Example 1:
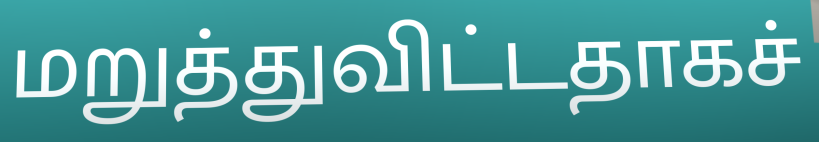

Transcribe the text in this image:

மறுத்துவிட்டதாகச்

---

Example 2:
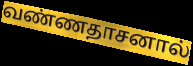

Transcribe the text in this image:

வண்ணதாசனால்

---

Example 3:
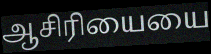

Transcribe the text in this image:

ஆசிரியையை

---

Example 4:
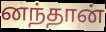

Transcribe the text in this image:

னந்தான்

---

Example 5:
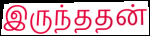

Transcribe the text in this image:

இருந்ததன்